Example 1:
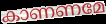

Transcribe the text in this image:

കാണണമേ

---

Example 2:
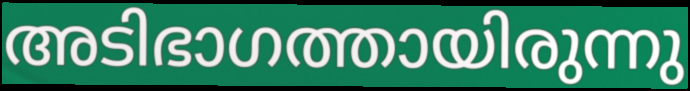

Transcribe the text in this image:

അടിഭാഗത്തായിരുന്നു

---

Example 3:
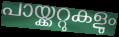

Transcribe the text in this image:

പായ്ക്കറ്റുകളും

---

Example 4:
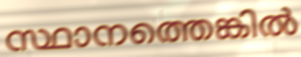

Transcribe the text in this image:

സ്ഥാനത്തെങ്കിൽ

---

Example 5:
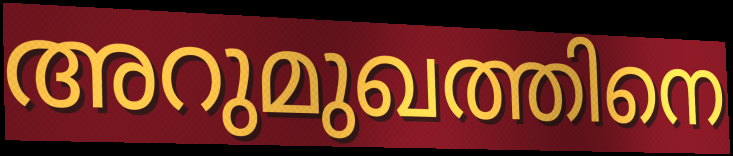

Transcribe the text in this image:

അറുമുഖത്തിനെ